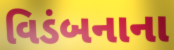
વિડંબનાના